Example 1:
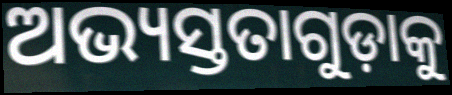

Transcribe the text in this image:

ଅଭ୍ୟସ୍ତତାଗୁଡ଼ାକୁ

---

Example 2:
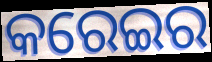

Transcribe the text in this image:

କରେଇର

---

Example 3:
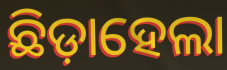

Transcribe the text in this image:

ଛିଡ଼ାହେଲା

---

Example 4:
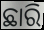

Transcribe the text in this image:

ଛାରି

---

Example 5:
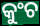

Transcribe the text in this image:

କୁଂଚ